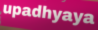
upadhyaya